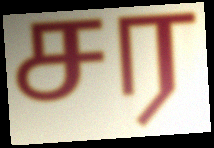
சர